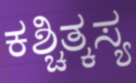
ಕಶ್ಚಿತ್ಕಸ್ಯ